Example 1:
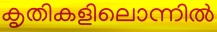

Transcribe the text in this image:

കൃതികളിലൊന്നിൽ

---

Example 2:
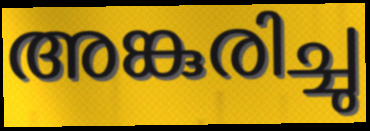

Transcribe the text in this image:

അങ്കുരിച്ചു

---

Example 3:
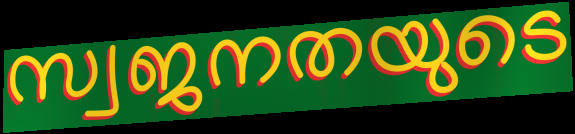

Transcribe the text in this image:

സ്വജനതയുടെ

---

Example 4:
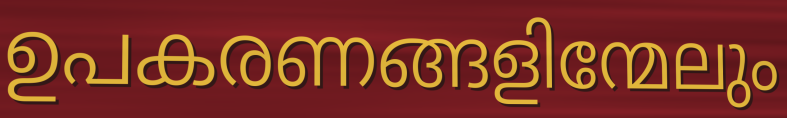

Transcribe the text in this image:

ഉപകരണങ്ങളിന്മേലും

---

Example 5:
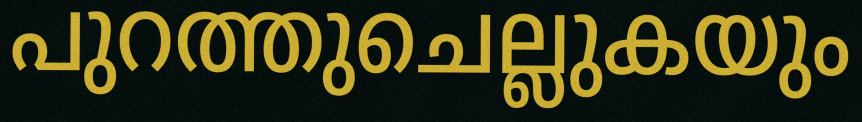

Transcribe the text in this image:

പുറത്തുചെല്ലുകയും